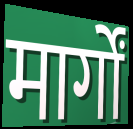
मार्गों